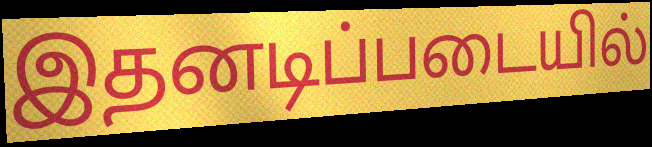
இதனடிப்படையில்